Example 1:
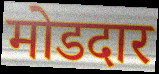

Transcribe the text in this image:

मोडदार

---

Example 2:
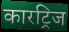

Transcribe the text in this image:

कारट्रिज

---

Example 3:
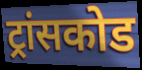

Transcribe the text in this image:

ट्रांसकोड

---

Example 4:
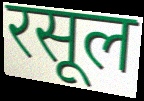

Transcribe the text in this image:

रसूल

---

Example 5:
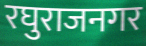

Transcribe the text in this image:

रघुराजनगर